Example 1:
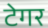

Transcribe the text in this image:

टेगर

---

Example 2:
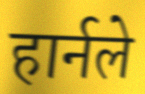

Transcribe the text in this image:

हार्नले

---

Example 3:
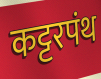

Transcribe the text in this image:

कट्टरपंथ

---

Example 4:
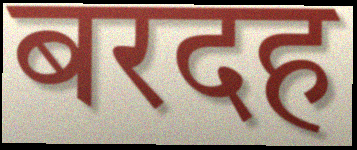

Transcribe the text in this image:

बरदह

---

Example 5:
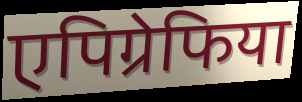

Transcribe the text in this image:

एपिग्रेफिया